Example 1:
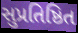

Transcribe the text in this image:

સુપ્રતિષ્ઠિત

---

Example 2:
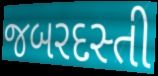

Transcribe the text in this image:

જબરદસ્તી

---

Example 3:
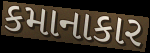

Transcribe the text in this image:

કમાનાકાર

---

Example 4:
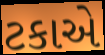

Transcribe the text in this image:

ટકાએ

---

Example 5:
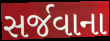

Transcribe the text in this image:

સર્જવાના